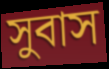
সুবাস